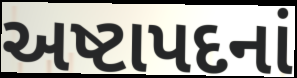
અષ્ટાપદનાં